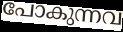
പോകുന്നവ